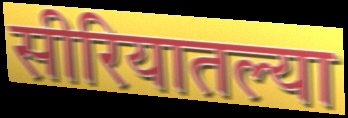
सीरियातल्या